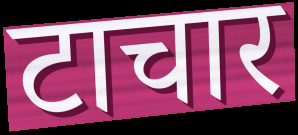
टाचार